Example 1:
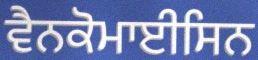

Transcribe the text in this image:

ਵੈਨਕੋਮਾਈਸਿਨ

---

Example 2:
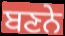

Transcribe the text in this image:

ਬਣਨੇ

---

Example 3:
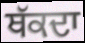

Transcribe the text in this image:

ਥੱਕਦਾ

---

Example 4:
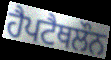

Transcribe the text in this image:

ਹੈਪਟੈਥਲੌਨ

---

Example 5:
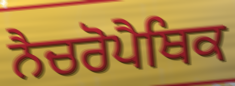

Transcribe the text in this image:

ਨੈਚਰੋਪੈਥਿਕ